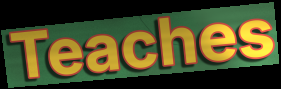
Teaches